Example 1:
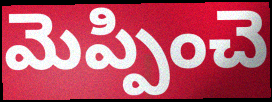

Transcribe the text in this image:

మెప్పించె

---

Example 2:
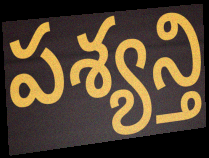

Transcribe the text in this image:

పశ్యన్తి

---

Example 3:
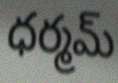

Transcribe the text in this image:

ధర్మమ్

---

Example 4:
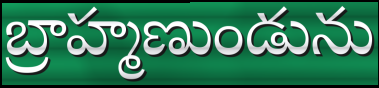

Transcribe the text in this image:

బ్రాహ్మణుండును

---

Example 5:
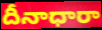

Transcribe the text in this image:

దీనాధారా